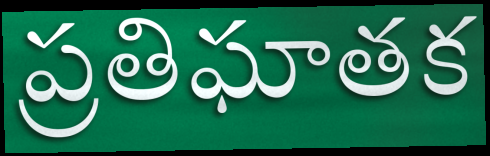
ప్రతిఘాతక